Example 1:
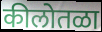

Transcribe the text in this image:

कीलोतळा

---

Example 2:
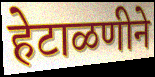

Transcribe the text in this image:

हेटाळणीने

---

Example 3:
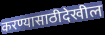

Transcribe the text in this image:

करण्यासाठीदेखील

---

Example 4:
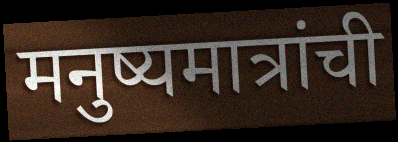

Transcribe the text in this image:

मनुष्यमात्रांची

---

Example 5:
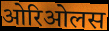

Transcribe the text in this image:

ओरिओलस